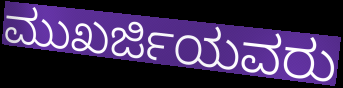
ಮುಖರ್ಜಿಯವರು